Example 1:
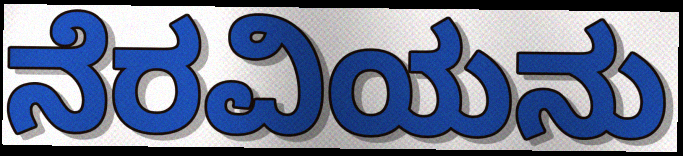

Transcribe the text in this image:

ನೆರವಿಯನು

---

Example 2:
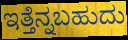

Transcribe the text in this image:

ಇತ್ತೆನ್ನಬಹುದು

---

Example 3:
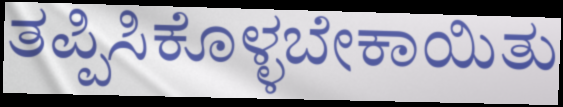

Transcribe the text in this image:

ತಪ್ಪಿಸಿಕೊಳ್ಳಬೇಕಾಯಿತು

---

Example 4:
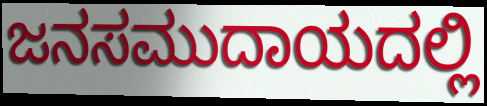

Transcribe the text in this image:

ಜನಸಮುದಾಯದಲ್ಲಿ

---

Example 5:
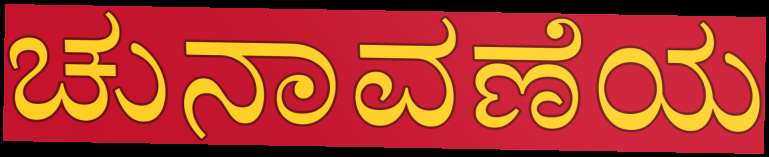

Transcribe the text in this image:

ಚುನಾವಣೆಯ